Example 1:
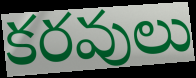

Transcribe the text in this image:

కరవులు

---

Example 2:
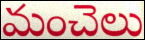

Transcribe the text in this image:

మంచెలు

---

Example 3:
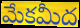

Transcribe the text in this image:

మేకమీద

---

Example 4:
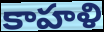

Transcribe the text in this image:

కాహళి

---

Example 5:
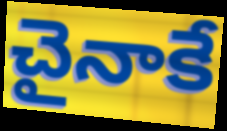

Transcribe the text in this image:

చైనాకే